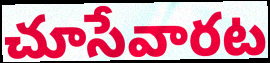
చూసేవారట